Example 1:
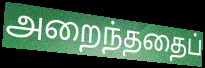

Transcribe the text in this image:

அறைந்ததைப்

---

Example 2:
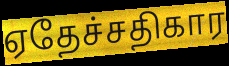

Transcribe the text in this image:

ஏதேச்சதிகார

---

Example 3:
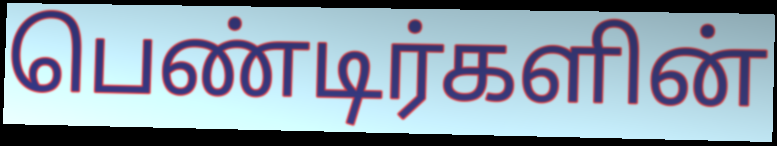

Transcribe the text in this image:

பெண்டிர்களின்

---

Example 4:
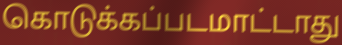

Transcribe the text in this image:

கொடுக்கப்படமாட்டாது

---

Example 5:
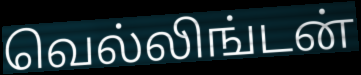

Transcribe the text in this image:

வெல்லிங்டன்